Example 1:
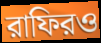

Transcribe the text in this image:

রাফিরও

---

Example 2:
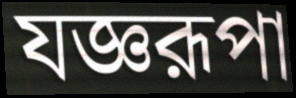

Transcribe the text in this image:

যজ্ঞরূপা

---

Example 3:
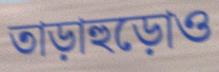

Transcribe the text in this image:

তাড়াহুড়োও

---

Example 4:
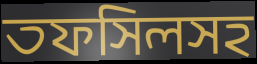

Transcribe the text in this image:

তফসিলসহ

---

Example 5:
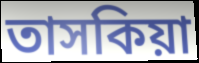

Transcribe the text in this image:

তাসকিয়া